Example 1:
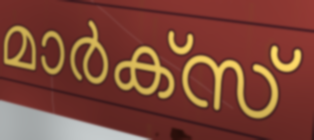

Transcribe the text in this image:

മാർക്‌സ്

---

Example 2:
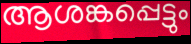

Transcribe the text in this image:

ആശങ്കപ്പെട്ടും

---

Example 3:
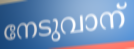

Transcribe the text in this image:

നേടുവാന്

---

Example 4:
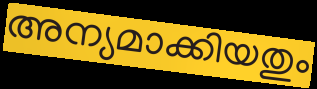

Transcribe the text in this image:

അന്യമാക്കിയതും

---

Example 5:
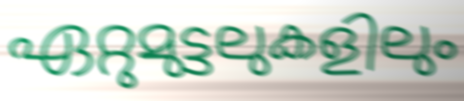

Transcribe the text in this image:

ഏറ്റുമുട്ടലുകളിലും